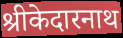
श्रीकेदारनाथ